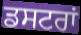
ਡਸਟਰਾਂ